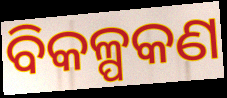
ବିକଳ୍ପକଣ